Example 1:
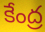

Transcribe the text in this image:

కేంద్ర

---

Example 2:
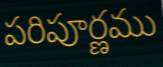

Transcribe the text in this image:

పరిపూర్ణము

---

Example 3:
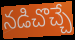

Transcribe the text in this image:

నడిచొచ్చే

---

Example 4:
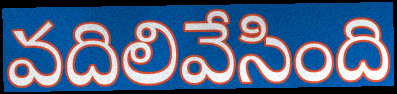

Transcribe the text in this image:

వదిలివేసింది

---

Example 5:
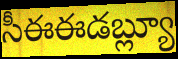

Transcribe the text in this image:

సీఈఈడబ్ల్యూ